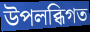
উপলব্ধিগত